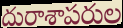
దురాశాపరుల